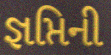
જ્ઞપ્તિની